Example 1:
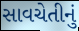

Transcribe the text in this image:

સાવચેતીનું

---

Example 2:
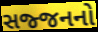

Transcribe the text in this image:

સજ્જનનો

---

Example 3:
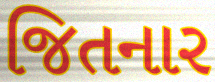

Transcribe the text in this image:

જિતનાર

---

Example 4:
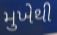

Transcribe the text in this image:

મુખેથી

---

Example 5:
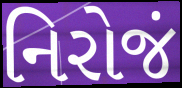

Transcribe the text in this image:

નિરોજં